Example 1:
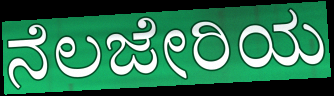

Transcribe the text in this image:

ನೆಲಜೇರಿಯ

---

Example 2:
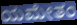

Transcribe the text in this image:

ಯಮೇತಂ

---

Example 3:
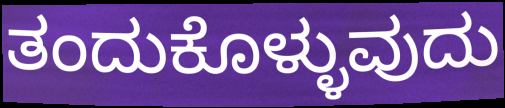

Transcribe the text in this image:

ತಂದುಕೊಳ್ಳುವುದು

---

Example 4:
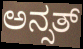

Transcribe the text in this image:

ಅನ್ಸತ್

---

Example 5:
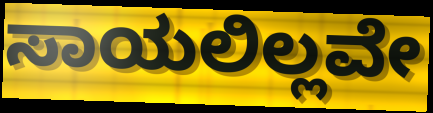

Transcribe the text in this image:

ಸಾಯಲಿಲ್ಲವೇ